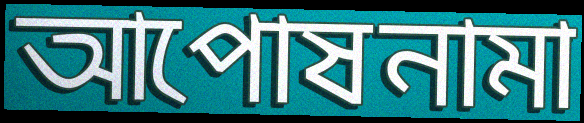
আপোষনামা